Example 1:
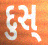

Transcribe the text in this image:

દુસ્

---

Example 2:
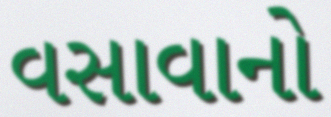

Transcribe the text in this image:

વસાવાનો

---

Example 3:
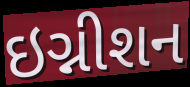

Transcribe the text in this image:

ઇગ્નીશન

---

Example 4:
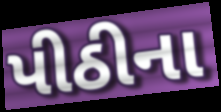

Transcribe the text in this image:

પીઠીના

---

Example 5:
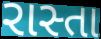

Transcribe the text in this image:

રાસ્તા